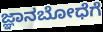
ಜ್ಞಾನಬೋಧೆಗೆ